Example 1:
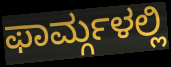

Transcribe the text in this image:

ಫಾರ್ಮ್ಗಳಲ್ಲಿ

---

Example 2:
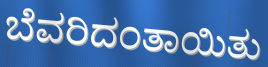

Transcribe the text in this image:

ಬೆವರಿದಂತಾಯಿತು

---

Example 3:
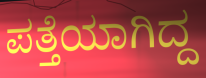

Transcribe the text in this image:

ಪತ್ತೆಯಾಗಿದ್ದ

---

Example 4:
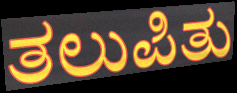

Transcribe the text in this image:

ತಲುಪಿತು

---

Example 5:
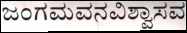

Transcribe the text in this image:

ಜಂಗಮವನವಿಶ್ವಾಸವ